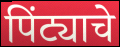
पिंट्याचे